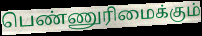
பெண்ணுரிமைக்கும்